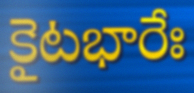
కైటభారేః